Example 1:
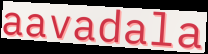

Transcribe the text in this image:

aavadala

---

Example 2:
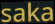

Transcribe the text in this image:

saka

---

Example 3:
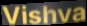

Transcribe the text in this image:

Vishva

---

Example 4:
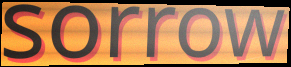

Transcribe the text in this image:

sorrow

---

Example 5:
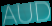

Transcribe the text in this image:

AUD